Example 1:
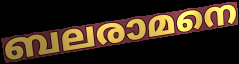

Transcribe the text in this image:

ബലരാമനെ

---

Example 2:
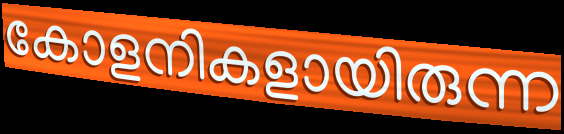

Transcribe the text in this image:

കോളനികളായിരുന്ന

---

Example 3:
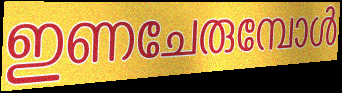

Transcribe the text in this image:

ഇണചേരുമ്പോൾ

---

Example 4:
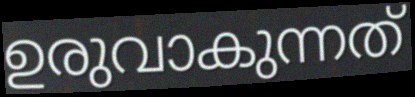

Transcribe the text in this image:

ഉരുവാകുന്നത്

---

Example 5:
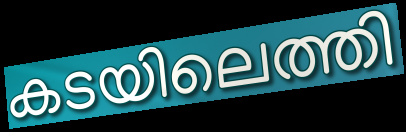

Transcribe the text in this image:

കടയിലെത്തി